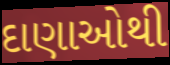
દાણાઓથી